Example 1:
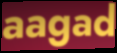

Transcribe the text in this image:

aagad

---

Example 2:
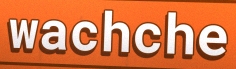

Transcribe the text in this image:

wachche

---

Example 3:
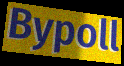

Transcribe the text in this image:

Bypoll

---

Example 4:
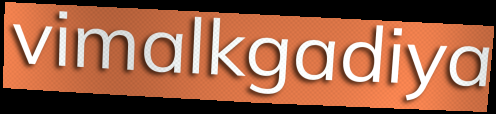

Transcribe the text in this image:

vimalkgadiya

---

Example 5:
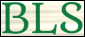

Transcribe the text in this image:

BLS